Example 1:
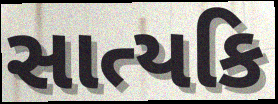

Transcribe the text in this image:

સાત્યકિ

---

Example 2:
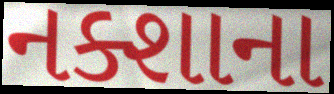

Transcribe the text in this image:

નક્શાના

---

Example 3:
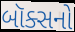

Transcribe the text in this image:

બૉક્સનો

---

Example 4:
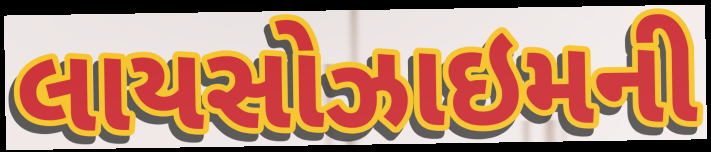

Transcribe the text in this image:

લાયસોઝાઇમની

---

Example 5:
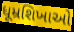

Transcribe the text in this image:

ધૂમ્રશિખાઓ